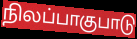
நிலப்பாகுபாடு